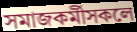
সমাজকৰ্মীসকলে